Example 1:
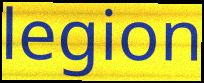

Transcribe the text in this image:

legion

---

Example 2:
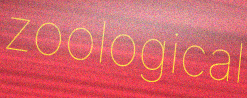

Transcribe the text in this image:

zoological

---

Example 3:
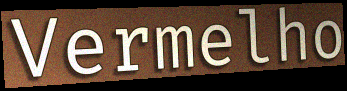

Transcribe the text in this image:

Vermelho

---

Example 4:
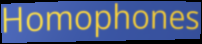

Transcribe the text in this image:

Homophones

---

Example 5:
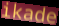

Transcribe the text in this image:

ikade